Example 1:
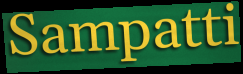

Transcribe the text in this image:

Sampatti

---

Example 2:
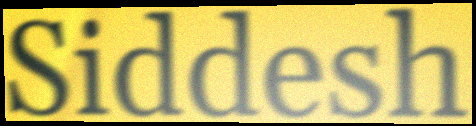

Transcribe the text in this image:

Siddesh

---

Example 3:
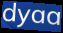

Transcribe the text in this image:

dyaa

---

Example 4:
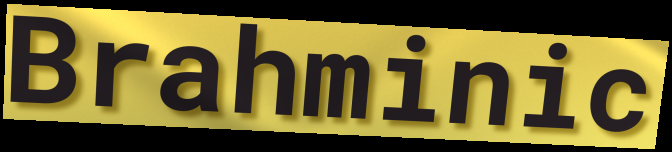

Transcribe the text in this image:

Brahminic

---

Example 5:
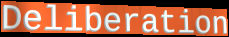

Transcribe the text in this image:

Deliberation